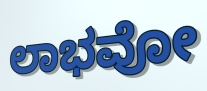
ಲಾಭವೋ